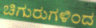
ಚಿಗುರುಗಳಿಂದ